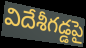
విదేశీగడ్డపై